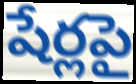
షేర్లపై